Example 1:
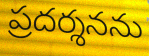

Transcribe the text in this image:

ప్రదర్శనను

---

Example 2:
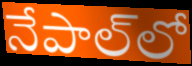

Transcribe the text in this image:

నేపాల్‌లో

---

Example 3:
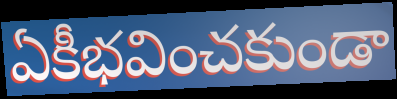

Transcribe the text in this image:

ఏకీభవించకుండా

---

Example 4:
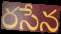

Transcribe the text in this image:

రసేన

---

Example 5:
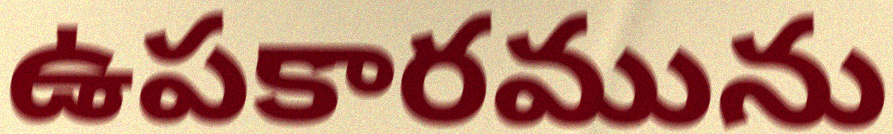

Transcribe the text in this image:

ఉపకారమును